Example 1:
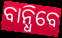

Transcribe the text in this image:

ବାନ୍ଧିବେ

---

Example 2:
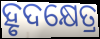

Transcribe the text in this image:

ହୃଦକ୍ଷେତ୍ର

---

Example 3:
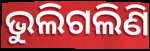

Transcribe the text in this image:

ଭୁଲିଗଲିଣି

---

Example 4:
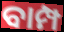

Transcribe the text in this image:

ବାମ୍ପ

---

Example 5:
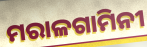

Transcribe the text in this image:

ମରାଳଗାମିନୀ